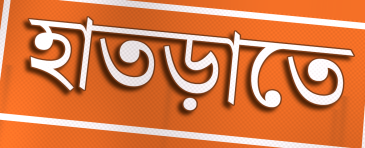
হাতড়াতে